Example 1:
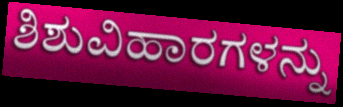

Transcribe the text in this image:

ಶಿಶುವಿಹಾರಗಳನ್ನು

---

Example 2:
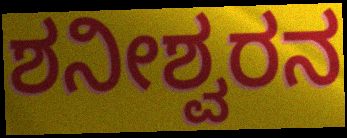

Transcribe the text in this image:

ಶನೀಶ್ವರನ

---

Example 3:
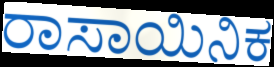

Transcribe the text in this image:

ರಾಸಾಯಿನಿಕ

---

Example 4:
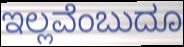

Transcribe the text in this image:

ಇಲ್ಲವೆಂಬುದೂ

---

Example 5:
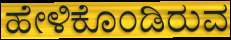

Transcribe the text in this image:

ಹೇಳಿಕೊಂಡಿರುವ